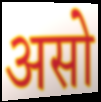
असो